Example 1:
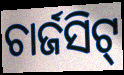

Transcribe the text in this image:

ଚାର୍ଜସିଟ୍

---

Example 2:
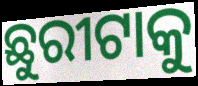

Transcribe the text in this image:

ଛୁରୀଟାକୁ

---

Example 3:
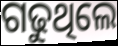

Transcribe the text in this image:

ଗଢୁଥିଲେ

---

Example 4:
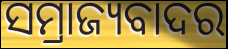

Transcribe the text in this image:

ସମ୍ରାଜ୍ୟବାଦର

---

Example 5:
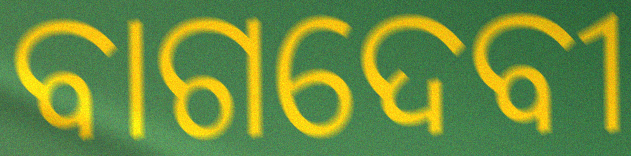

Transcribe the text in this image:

ବାଗଦେବୀ